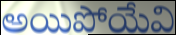
అయిపోయేవి